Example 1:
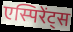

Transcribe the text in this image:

एस्पिरेंट्स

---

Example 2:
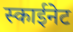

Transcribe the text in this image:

स्काईनेट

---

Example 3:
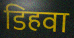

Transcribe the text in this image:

डिहवा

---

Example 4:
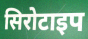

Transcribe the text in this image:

सिरोटाइप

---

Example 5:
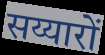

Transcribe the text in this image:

सय्यारों